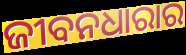
ଜୀବନଧାରାର